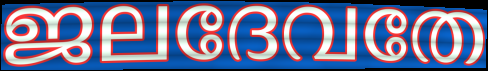
ജലദേവതേ